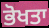
ਭੋਖਤਾ